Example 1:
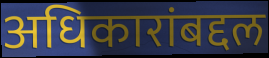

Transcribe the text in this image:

अधिकारांबद्दल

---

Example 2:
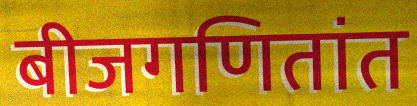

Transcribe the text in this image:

बीजगणितांत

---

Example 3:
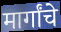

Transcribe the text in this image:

मार्गांचे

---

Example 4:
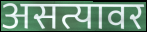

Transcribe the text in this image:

असत्यावर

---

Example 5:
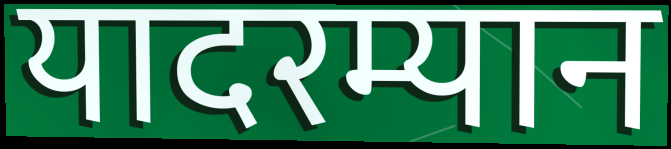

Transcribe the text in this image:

यादरम्यान